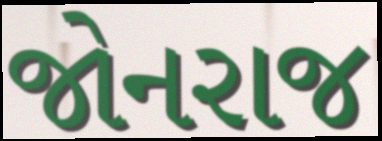
જોનરાજ